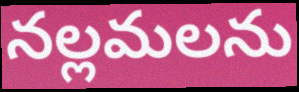
నల్లమలను